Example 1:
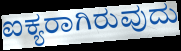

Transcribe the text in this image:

ಐಕ್ಯರಾಗಿರುವುದು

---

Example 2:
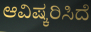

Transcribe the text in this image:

ಆವಿಷ್ಕರಿಸಿದೆ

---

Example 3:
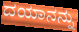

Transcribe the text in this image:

ದಯಾನನ್ನು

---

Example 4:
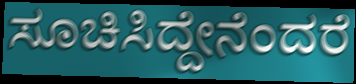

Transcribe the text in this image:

ಸೂಚಿಸಿದ್ದೇನೆಂದರೆ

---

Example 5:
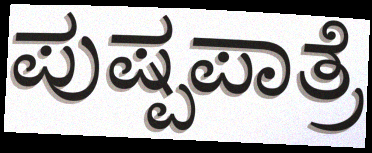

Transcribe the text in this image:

ಪುಷ್ಪಪಾತ್ರೆ